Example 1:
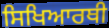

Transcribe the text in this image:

ਸਿਖਿਆਰਥੀ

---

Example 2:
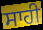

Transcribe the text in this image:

ਸਾਹੀ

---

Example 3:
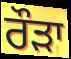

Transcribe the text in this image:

ਰੌੜਾ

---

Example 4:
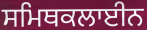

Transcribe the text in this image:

ਸਮਿਥਕਲਾਈਨ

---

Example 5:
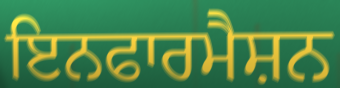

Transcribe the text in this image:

ਇਨਫਾਰਮੈਸ਼ਨ